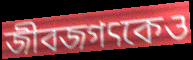
জীবজগৎকেও